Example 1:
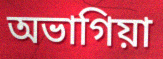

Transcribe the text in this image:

অভাগিয়া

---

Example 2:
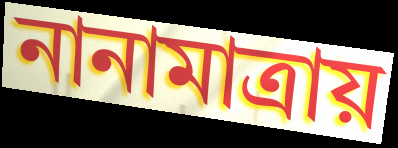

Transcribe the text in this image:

নানামাত্রায়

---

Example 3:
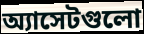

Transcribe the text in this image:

অ্যাসেটগুলো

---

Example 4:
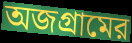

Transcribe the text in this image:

অজগ্রামের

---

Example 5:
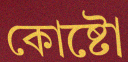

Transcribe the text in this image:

কোষ্টো